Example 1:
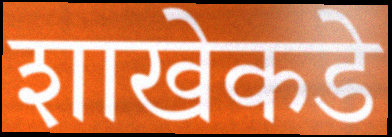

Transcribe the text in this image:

शाखेकडे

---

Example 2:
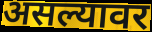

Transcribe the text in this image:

असल्यावर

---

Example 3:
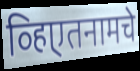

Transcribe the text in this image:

व्हिएतनामचे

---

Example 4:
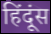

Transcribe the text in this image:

हिंदूंस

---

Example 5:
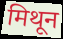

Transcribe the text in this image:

मिथून